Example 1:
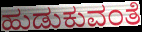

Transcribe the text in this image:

ಹುಡುಕುವಂತೆ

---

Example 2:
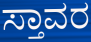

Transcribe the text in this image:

ಸ್ತಾವರ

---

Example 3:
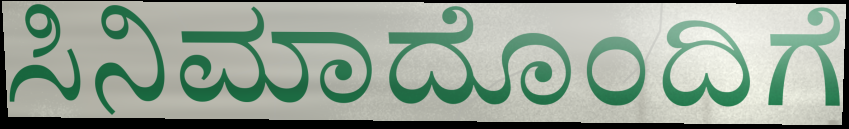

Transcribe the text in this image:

ಸಿನಿಮಾದೊಂದಿಗೆ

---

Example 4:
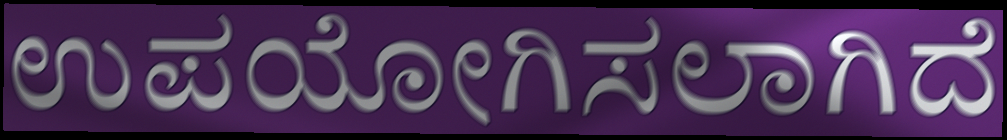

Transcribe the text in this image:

ಉಪಯೋಗಿಸಲಾಗಿದೆ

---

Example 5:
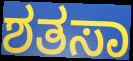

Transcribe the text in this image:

ಶತಸಾ